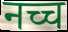
नच्च